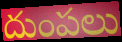
దుంపలు